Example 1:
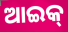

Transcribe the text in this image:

ଆଇକ୍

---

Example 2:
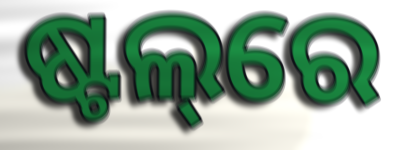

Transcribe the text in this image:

ଷ୍ଟଲ୍‌ରେ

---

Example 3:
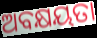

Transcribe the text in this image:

ଅବକ୍ଷୟତା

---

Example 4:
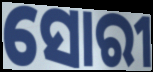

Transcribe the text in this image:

ସୋରୀ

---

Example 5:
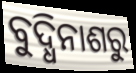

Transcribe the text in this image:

ବୁଦ୍ଧିନାଶରୁ